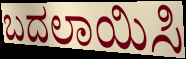
ಬದಲಾಯಿಸಿ